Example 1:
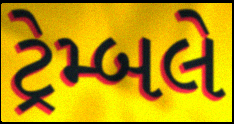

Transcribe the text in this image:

ટ્રેમ્બલે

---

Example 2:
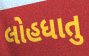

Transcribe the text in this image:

લોહધાતુ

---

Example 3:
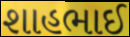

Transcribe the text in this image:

શાહભાઈ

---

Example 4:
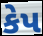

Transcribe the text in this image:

કેપ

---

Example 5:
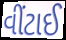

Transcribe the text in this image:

વીંટાઈ